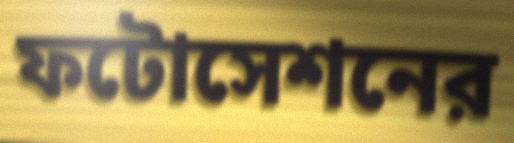
ফটোসেশনের